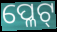
ପ୍ଳେଟ୍